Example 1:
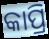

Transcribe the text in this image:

କାପ୍ରି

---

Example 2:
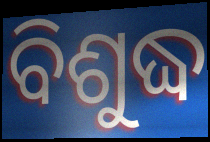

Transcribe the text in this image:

ବିଶୁଦ୍ଧ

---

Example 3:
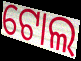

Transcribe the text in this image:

ଟୋଲ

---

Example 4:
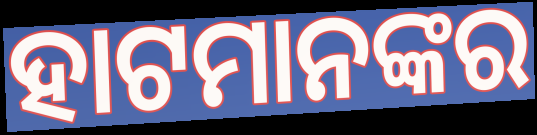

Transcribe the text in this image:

ହାଟମାନଙ୍କର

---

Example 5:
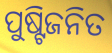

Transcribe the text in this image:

ପୁଷ୍ଟିଜନିତ